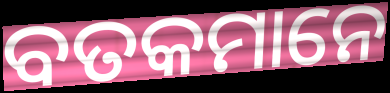
ବତକମାନେ